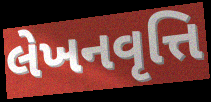
લેખનવૃત્તિ